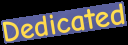
Dedicated